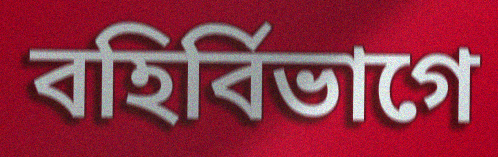
বহির্বিভাগে